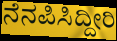
ನೆನಪಿಸಿದ್ದೀರಿ